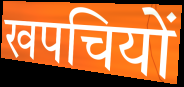
खपचियों